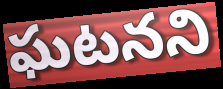
ఘటనని